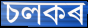
চলকৰ